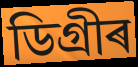
ডিগ্ৰীৰ